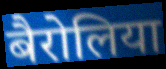
बैरोलिया